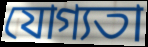
যোগ্যতা